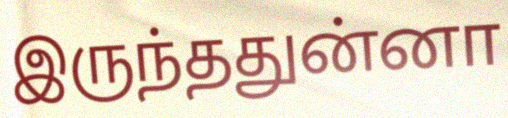
இருந்ததுன்னா